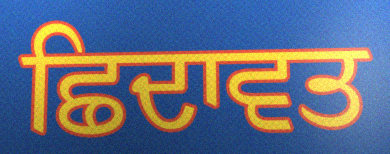
ਛਿਦਾਵਤ